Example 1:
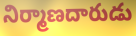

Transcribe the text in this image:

నిర్మాణదారుడు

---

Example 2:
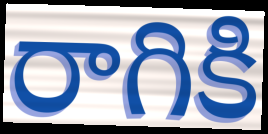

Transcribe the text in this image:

రాగికి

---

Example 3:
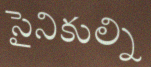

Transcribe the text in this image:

సైనికుల్ని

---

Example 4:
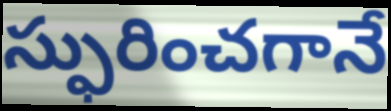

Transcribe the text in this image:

స్ఫురించగానే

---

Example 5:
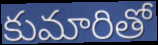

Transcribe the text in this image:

కుమారితో